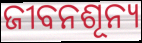
ଜୀବନଶୂନ୍ୟ